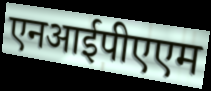
एनआईपीएएम